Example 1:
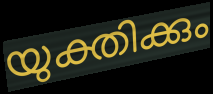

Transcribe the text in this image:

യുക്തിക്കും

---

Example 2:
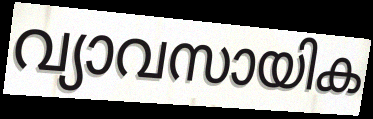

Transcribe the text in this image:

വ്യാവസായിക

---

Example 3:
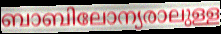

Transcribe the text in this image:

ബാബിലോന്യരാലുള്ള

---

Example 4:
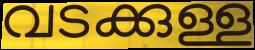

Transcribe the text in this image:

വടക്കുള്ള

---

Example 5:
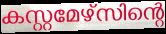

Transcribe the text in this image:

കസ്റ്റമേഴ്സിന്റെ